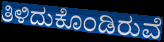
ತಿಳಿದುಕೊಂಡಿರುವೆ